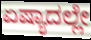
ಏಷ್ಯಾದಲ್ಲೇ